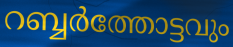
റബ്ബർത്തോട്ടവും